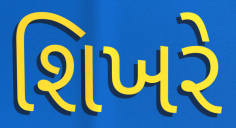
શિખરે